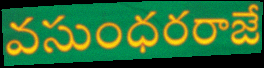
వసుంధరరాజే